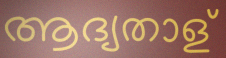
ആദ്യതാള്